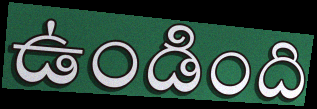
ఉండింది